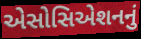
એસોસિએશનનું